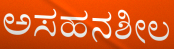
ಅಸಹನಶೀಲ